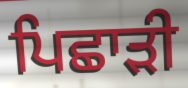
ਪਿਛਾੜੀ